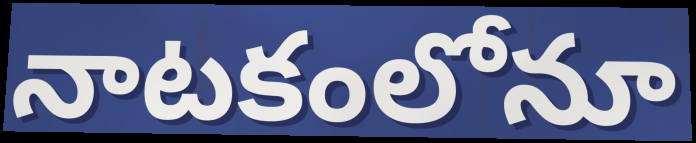
నాటకంలోనూ